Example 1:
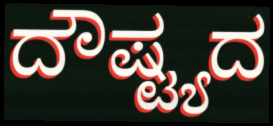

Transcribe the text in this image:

ದೌಷ್ಟ್ಯದ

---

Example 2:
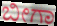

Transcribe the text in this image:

ಬೀಗಾ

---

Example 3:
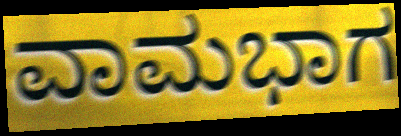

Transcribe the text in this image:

ವಾಮಭಾಗ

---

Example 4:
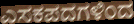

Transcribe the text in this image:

ಎಸಕಪದಗಳಿಂದ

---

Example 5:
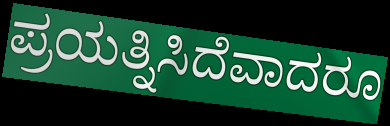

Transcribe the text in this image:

ಪ್ರಯತ್ನಿಸಿದೆವಾದರೂ